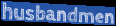
husbandmen